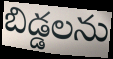
బిడ్డలను